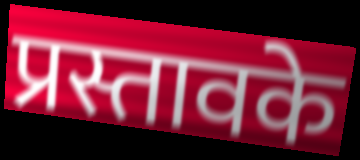
प्रस्तावके